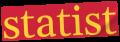
statist